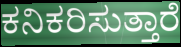
ಕನಿಕರಿಸುತ್ತಾರೆ